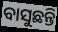
ବାସୁଛନ୍ତି